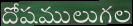
దోషములుగల